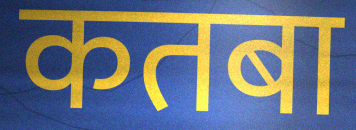
कतबा